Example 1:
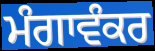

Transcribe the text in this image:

ਮੰਗਾਵੰਕਰ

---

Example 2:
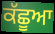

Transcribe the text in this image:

ਕੱਛੂਆ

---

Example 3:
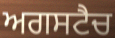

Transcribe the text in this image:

ਅਗਸਟੈਚ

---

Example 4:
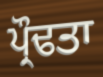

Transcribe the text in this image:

ਪ੍ਰੌਢਤਾ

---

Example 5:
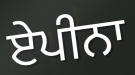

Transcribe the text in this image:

ਏਪੀਨਾ